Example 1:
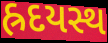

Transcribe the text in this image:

હ્રદયસ્થ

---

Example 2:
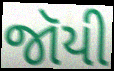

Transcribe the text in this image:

જૉયી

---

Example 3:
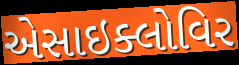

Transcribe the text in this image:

એસાઇક્લોવિર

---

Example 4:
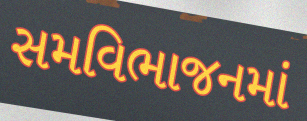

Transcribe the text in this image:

સમવિભાજનમાં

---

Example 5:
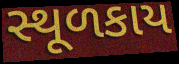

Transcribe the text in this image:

સ્થૂળકાય